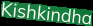
Kishkindha